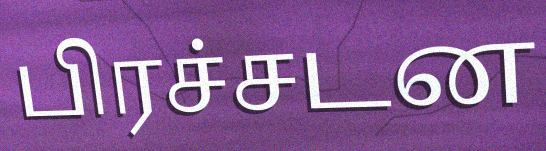
பிரச்சடன